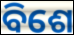
ବିଶେ